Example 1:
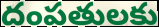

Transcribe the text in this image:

దంపతులకు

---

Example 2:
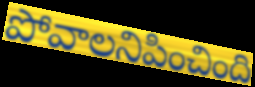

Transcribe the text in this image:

పోవాలనిపించింది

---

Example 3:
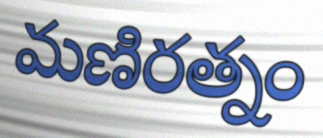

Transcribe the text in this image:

మణిరత్నం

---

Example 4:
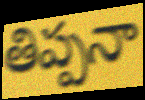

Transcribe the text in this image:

తిప్పనా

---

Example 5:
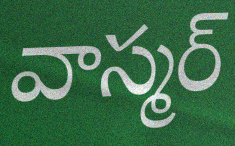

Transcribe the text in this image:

వాస్మర్